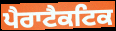
ਪੈਰਾਟੈਕਟਿਕ